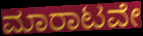
ಮಾರಾಟವೇ